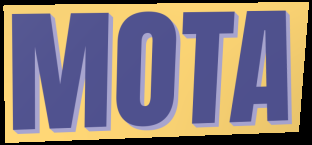
MOTA